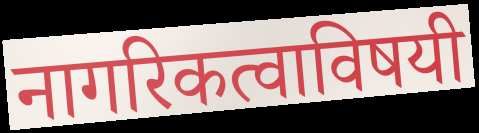
नागरिकत्वाविषयी